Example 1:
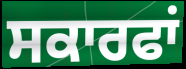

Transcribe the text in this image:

ਸਕਾਰਫਾਂ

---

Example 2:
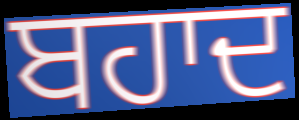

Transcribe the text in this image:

ਬਹਾਦ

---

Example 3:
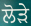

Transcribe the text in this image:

ਲੋੜੇ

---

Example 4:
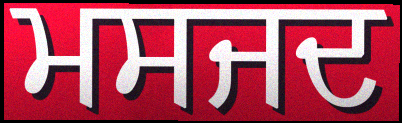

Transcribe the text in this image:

ਮਸਜਦ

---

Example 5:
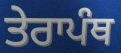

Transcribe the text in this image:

ਤੇਰਾਪੰਥ